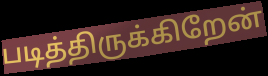
படித்திருக்கிறேன்